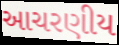
આચરણીય